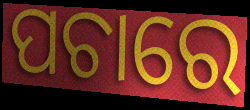
ପଚାରେ